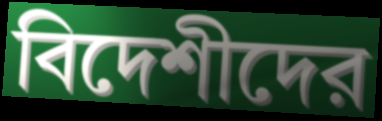
বিদেশীদের